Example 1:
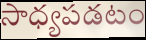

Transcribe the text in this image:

సాధ్యపడటం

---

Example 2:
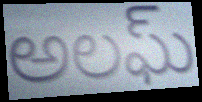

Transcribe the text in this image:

అలఘ్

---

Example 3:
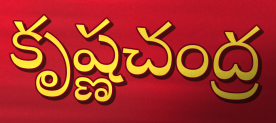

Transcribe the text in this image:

కృష్ణచంద్ర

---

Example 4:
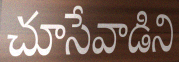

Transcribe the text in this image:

చూసేవాడిని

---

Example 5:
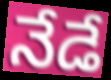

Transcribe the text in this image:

నేడే